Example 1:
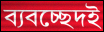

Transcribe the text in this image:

ব্যবচ্ছেদই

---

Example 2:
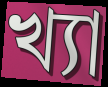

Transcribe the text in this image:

খ্যা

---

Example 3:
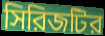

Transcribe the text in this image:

সিরিজটির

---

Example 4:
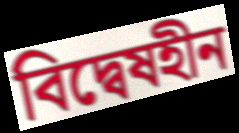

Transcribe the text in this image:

বিদ্বেষহীন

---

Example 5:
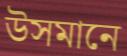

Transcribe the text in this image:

উসমানে